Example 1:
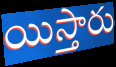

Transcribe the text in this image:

యిస్తారు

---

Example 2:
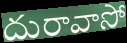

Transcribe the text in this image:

దురావాసో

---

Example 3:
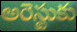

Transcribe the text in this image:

అరెస్టుకు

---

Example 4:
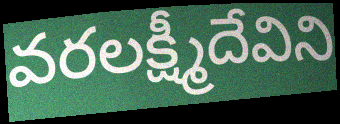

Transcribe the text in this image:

వరలక్ష్మీదేవిని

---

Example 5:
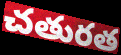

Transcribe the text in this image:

చతురత